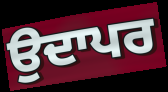
ਉਦਾਪਰ